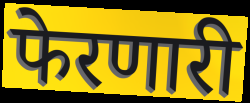
फेरणारी